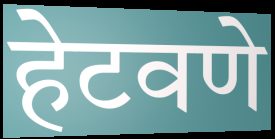
हेटवणे